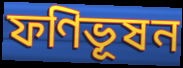
ফণিভূষন